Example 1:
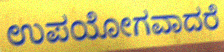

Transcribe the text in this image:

ಉಪಯೋಗವಾದರೆ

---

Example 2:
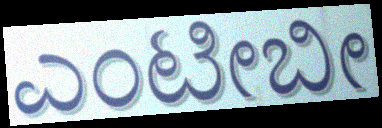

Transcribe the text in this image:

ಎಂಟೀಬೀ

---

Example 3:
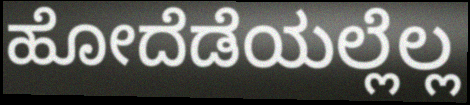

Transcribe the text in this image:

ಹೋದೆಡೆಯಲ್ಲೆಲ್ಲ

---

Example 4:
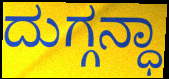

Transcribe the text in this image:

ದುಗ್ಗನ್ಧಾ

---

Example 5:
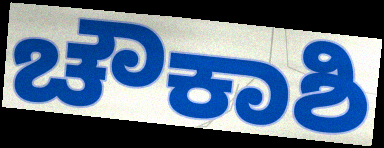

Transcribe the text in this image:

ಚೌಕಾಶಿ